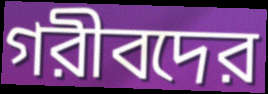
গরীবদের